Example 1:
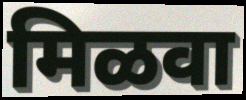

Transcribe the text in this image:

मिळवा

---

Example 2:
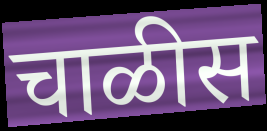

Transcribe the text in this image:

चाळीस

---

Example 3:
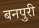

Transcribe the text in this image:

बनपुरी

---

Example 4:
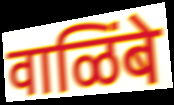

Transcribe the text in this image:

वाळिंबे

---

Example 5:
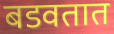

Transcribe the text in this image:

बडवतात